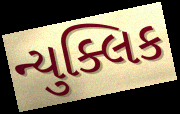
ન્યુક્લિક